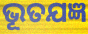
ଭୂତଯଜ୍ଞ